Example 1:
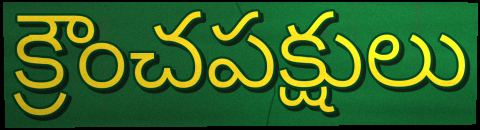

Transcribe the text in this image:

క్రౌంచపక్షులు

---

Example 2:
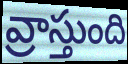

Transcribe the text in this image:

వ్రాస్తుంది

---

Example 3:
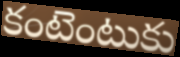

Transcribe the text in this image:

కంటెంటుకు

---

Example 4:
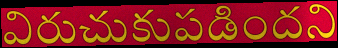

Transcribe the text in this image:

విరుచుకుపడిందని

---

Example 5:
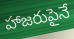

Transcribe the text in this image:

హాజరుపైనే